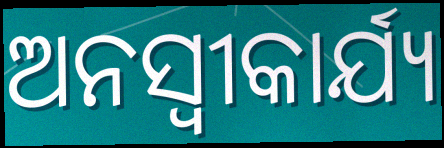
ଅନସ୍ବୀକାର୍ଯ୍ୟ